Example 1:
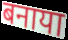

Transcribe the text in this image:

बनाया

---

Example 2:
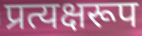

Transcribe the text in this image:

प्रत्यक्षरूप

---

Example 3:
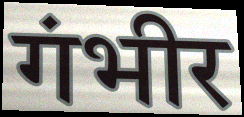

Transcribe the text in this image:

गंभीर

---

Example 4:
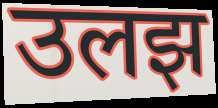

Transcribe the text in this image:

उलझ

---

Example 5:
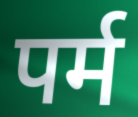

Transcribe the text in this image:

पर्म